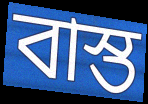
বাস্ত